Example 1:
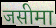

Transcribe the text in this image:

जसीमा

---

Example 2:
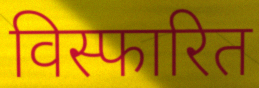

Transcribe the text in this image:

विस्फारित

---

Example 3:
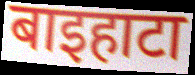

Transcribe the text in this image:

बाइहाटा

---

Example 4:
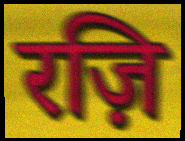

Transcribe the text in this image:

रज़ि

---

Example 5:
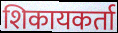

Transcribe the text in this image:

शिकायकर्ता